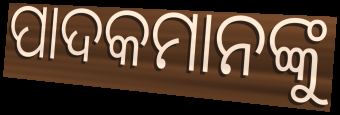
ପାଦକମାନଙ୍କୁ